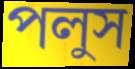
পলুস